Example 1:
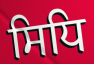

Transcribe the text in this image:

ਸਿਧਿ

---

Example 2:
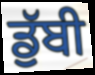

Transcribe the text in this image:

ਡੁੱਬੀ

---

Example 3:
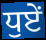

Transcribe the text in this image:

ਧੁਏਂ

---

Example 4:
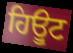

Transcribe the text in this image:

ਹਿਊਟ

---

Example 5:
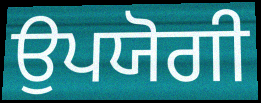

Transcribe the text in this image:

ਉਪਯੋਗੀ